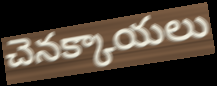
చెనక్కాయలు